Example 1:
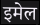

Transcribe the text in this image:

इमेल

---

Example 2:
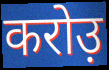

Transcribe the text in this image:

करोउ़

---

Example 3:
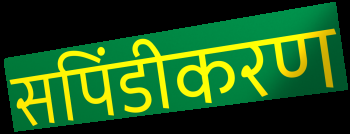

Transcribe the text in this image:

सपिंडीकरण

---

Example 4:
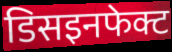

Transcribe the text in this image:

डिसइनफेक्ट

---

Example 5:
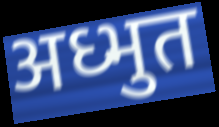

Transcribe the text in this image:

अध्भुत